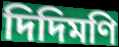
দিদিমণি